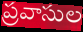
ప్రవాసుల